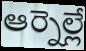
ఆర్నెల్లే